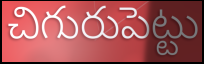
చిగురుపెట్టు